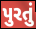
પુરતું